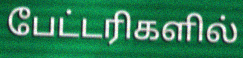
பேட்டரிகளில்